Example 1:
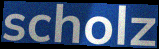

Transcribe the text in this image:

scholz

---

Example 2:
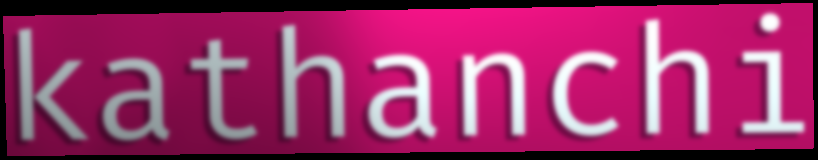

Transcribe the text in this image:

kathanchi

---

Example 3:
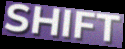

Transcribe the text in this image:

SHIFT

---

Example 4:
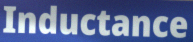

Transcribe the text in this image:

Inductance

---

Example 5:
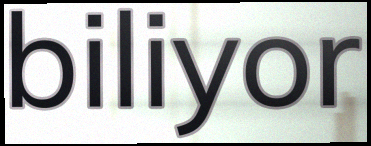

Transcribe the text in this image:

biliyor